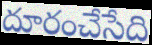
దూరంచేసేది